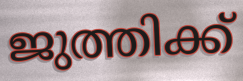
ജുത്തിക്ക്